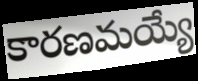
కారణమయ్యే